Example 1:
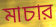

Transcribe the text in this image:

মাচার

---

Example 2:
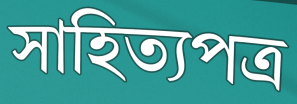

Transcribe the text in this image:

সাহিত্যপত্র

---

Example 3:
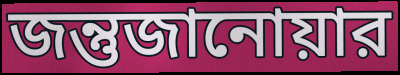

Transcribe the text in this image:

জন্তুজানোয়ার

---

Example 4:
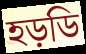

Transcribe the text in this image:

হড়ডি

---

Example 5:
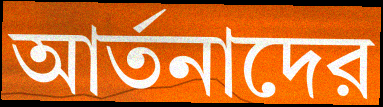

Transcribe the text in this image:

আর্তনাদের